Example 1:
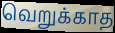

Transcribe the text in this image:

வெறுக்காத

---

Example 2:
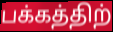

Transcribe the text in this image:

பக்கத்திற்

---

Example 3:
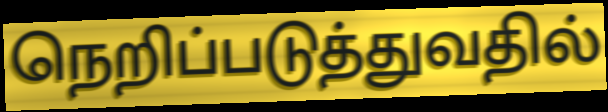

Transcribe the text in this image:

நெறிப்படுத்துவதில்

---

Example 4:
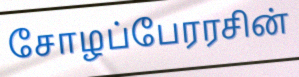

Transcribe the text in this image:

சோழப்பேரரசின்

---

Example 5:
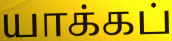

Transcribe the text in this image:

யாக்கப்